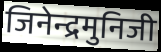
जिनेन्द्रमुनिजी